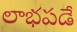
లాభపడే